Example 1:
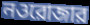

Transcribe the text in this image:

নওরোজার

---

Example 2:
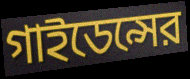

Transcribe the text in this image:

গাইডেন্সের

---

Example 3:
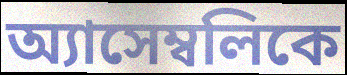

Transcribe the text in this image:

অ্যাসেম্বলিকে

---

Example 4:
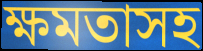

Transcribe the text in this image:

ক্ষমতাসহ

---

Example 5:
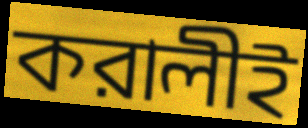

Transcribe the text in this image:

করালীই